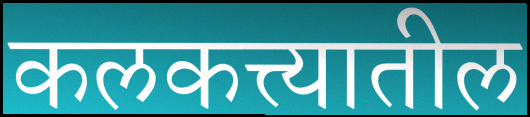
कलकत्त्यातील